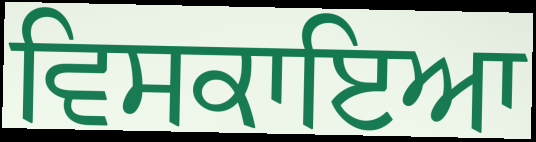
ਵਿਸਕਾਇਆ